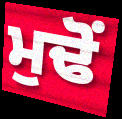
ਮੁਢੋਂ